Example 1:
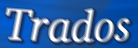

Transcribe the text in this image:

Trados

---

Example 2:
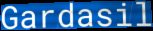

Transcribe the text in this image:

Gardasil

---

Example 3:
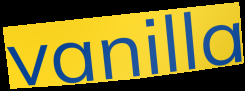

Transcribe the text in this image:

vanilla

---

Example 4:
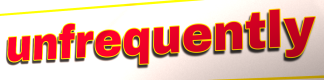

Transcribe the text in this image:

unfrequently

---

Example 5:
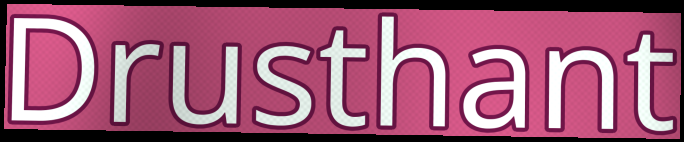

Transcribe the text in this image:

Drusthant